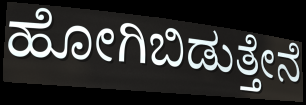
ಹೋಗಿಬಿಡುತ್ತೇನೆ